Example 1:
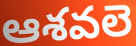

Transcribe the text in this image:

ఆశవలె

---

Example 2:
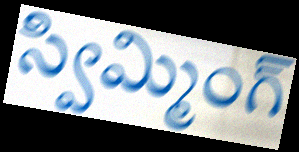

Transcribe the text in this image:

స్విమ్మింగ్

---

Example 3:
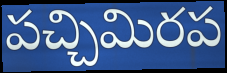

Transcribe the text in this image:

పచ్చిమిరప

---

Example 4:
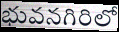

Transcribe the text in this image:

భువనగిరిలో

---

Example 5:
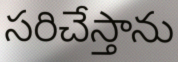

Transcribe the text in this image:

సరిచేస్తాను